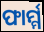
ଫାର୍ମ୍ମ